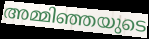
അമ്മിഞ്ഞയുടെ